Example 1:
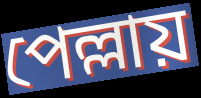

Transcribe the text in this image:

পেল্লায়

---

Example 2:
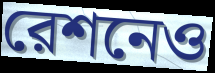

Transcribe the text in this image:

রেশনেও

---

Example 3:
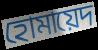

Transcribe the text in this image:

হোমায়েদ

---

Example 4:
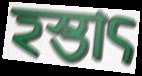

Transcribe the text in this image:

হস্তাৎ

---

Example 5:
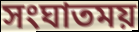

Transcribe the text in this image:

সংঘাতময়